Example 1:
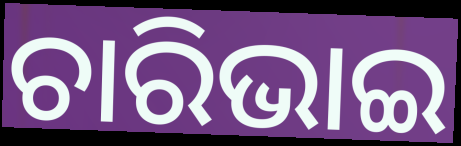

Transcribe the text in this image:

ଚାରିଭାଇ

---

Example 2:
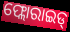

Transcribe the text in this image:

ଫ୍ଲୋରାଇଡ୍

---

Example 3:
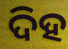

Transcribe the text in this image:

ଦିହ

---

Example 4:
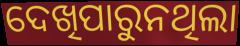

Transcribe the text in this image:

ଦେଖିପାରୁନଥିଲା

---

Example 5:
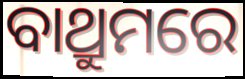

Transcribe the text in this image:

ବାଥ୍ରୁମରେ